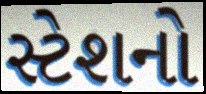
સ્ટેશનો